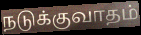
நடுக்குவாதம்